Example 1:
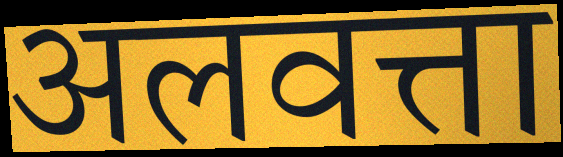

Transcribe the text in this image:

अलवत्ता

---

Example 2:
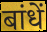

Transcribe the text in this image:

बांधें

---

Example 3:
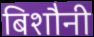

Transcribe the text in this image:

बिशौनी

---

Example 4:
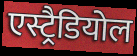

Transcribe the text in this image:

एस्ट्रैडियोल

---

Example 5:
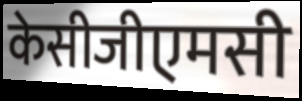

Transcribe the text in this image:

केसीजीएमसी